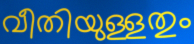
വീതിയുള്ളതും